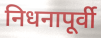
निधनापूर्वी